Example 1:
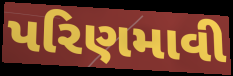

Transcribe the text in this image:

પરિણમાવી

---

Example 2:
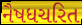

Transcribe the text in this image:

નૈષધચરિત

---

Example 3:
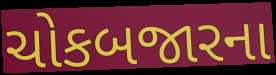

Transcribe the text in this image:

ચોકબજારના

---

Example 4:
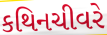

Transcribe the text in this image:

કથિનચીવરે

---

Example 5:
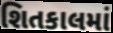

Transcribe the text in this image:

શિતકાલમાં